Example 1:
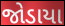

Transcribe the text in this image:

જોડાયા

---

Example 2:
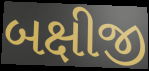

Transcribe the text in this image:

બક્ષીજી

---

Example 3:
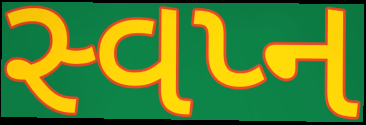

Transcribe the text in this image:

સ્વપ્ન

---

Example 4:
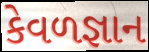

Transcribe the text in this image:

કેવળજ્ઞાન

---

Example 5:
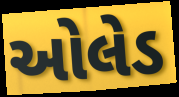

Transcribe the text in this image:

ઓલેડ